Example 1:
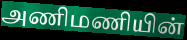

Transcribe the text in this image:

அணிமணியின்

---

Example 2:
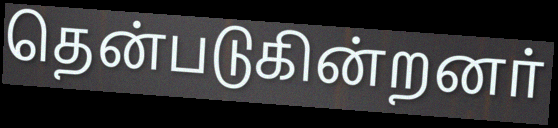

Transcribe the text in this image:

தென்படுகின்றனர்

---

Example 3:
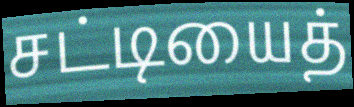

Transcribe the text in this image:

சட்டியைத்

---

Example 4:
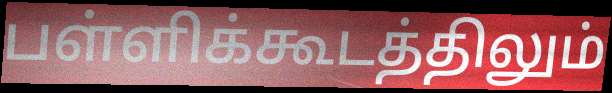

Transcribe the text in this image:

பள்ளிக்கூடத்திலும்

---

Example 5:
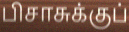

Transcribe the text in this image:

பிசாசுக்குப்